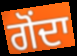
ਗੋਂਦਾ